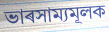
ভাৰসাম্যমূলক